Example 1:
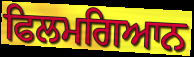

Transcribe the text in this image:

ਫਿਲਮਗਿਆਨ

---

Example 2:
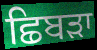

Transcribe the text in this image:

ਛਿਬੜਾ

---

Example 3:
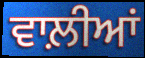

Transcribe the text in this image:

ਵਾਲ਼ੀਆਂ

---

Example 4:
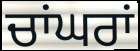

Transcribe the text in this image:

ਚਾਂਘਰਾਂ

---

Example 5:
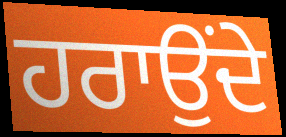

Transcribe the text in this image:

ਹਰਾਉਂਦੇ